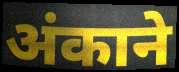
अंकाने